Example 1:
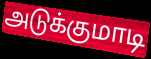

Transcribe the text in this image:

அடுக்குமாடி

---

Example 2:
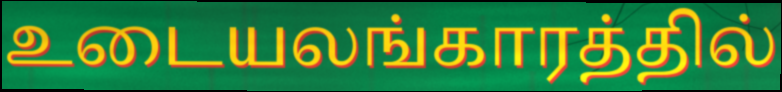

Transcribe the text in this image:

உடையலங்காரத்தில்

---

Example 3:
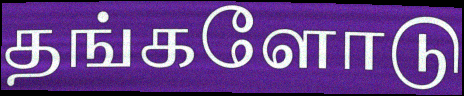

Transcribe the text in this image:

தங்களோடு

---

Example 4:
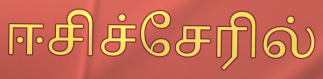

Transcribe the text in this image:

ஈசிச்சேரில்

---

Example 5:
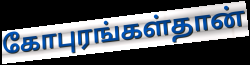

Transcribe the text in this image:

கோபுரங்கள்தான்